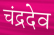
चंद्रदेव